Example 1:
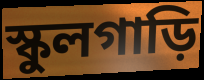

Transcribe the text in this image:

স্কুলগাড়ি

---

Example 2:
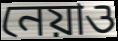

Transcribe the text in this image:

নেয়াও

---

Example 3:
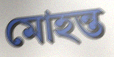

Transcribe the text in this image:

মোহন্ত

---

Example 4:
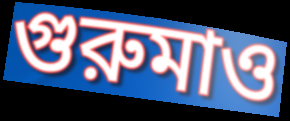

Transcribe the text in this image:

গুরুমাও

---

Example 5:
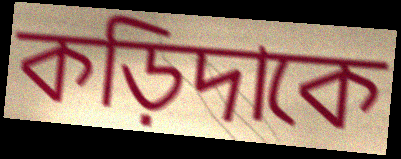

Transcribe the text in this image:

কড়িদাকে